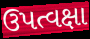
ઉપત્વક્ષા